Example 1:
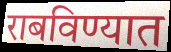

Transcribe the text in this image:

राबविण्‍यात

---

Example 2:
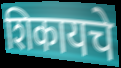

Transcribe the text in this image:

शिकायचे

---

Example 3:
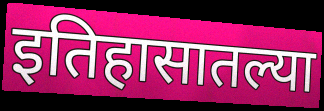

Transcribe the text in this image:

इतिहासातल्या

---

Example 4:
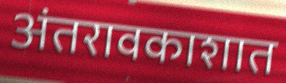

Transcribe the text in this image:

अंतरावकाशात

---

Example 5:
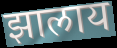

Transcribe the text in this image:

झालाय